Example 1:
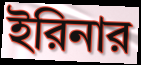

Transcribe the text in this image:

ইরিনার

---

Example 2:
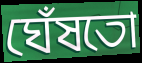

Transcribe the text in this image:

ঘেঁষতো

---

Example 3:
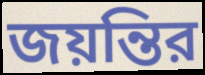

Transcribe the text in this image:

জয়ন্তির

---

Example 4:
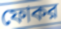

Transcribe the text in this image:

ফোকর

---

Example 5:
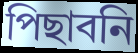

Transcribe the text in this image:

পিছাবনি